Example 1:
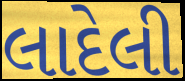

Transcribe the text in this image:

લાદેલી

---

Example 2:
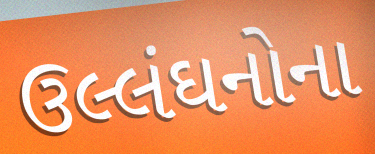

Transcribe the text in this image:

ઉલ્લંઘનોના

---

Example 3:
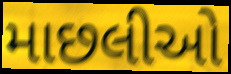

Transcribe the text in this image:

માછલીઓ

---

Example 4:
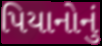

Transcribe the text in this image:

પિયાનોનું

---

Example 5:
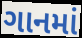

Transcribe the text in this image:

ગાનમાં